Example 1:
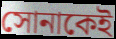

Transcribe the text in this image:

সোনাকেই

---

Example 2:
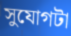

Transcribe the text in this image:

সুযোগটা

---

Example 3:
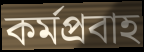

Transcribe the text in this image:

কর্মপ্রবাহ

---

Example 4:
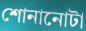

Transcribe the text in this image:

শোনানোটা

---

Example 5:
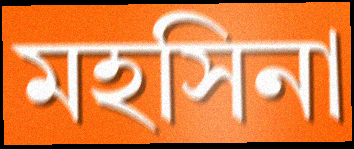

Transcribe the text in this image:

মহসিনা